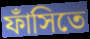
ফাঁসিতে